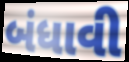
બંધાવી